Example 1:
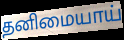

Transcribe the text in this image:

தனிமையாய்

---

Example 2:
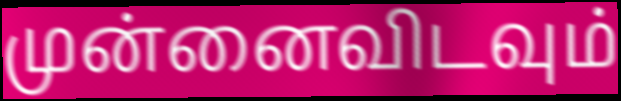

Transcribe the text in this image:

முன்னைவிடவும்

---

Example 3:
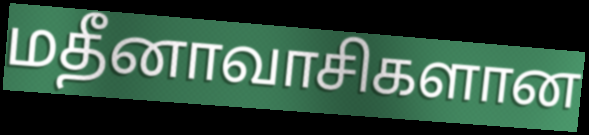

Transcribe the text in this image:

மதீனாவாசிகளான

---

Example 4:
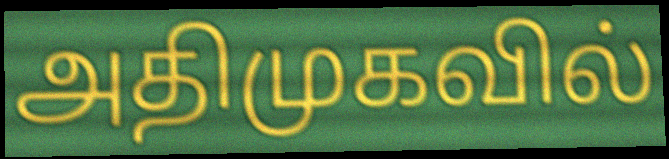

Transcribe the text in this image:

அதிமுகவில்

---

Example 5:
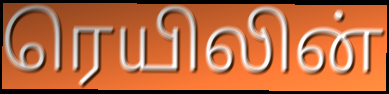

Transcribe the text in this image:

ரெயிலின்